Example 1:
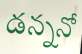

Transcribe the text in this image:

డన్ననో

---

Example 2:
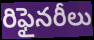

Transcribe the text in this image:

రిఫైనరీలు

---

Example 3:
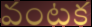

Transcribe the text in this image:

వంటక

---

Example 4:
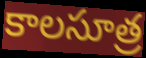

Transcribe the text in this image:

కాలసూత్ర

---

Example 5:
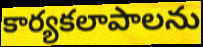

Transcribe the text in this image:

కార్యకలాపాలను